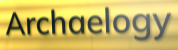
Archaelogy